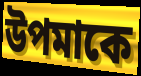
উপমাকে